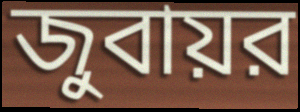
জুবায়র